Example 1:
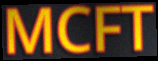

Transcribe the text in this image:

MCFT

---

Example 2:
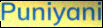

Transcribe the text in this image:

Puniyani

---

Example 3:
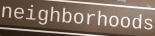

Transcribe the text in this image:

neighborhoods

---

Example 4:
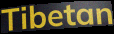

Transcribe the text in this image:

Tibetan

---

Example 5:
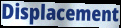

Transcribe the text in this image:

Displacement